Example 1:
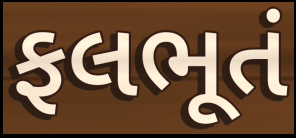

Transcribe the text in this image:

ફલભૂતં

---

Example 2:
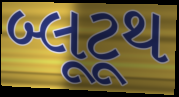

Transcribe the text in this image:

બ્લૂટૂથ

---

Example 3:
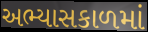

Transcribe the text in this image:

અભ્યાસકાળમાં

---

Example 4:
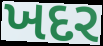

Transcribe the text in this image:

ખદર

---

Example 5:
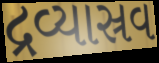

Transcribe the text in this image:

દ્રવ્યાસ્રવ